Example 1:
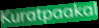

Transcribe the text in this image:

Kuratpaakal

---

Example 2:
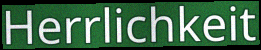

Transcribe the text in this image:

Herrlichkeit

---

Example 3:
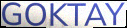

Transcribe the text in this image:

GOKTAY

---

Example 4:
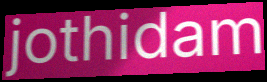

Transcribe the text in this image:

jothidam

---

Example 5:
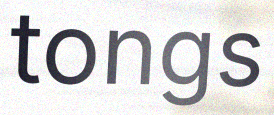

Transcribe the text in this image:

tongs